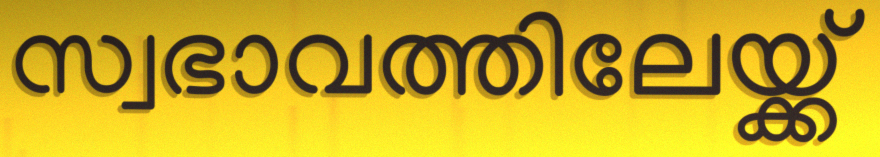
സ്വഭാവത്തിലേയ്ക്ക്